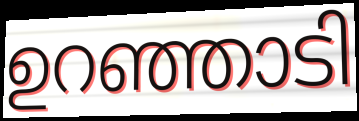
ഉറഞ്ഞാടി